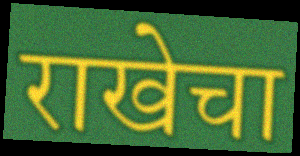
राखेचा